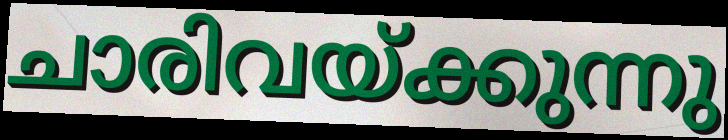
ചാരിവയ്ക്കുന്നു